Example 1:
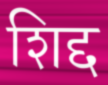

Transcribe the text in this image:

शिद्द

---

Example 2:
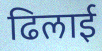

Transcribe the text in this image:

ढिलाई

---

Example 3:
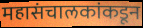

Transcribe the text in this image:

महासंचालकांकडून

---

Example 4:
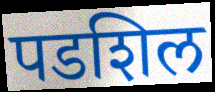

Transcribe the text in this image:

पडशिल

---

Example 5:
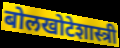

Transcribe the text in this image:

बोलखोटेशास्त्री